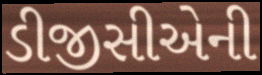
ડીજીસીએની